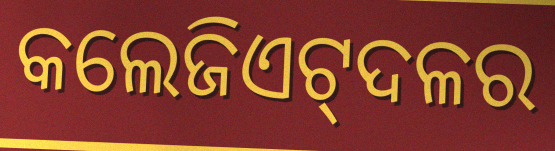
କଲେଜିଏଟ୍‍ଦଳର